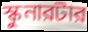
স্কুনারটার